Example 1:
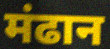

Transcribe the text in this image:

मंढान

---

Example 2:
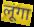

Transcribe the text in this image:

लूंगा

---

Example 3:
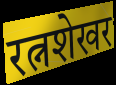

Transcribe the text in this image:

रत्नशेखर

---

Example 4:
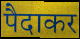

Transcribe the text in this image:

पैदाकर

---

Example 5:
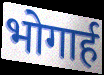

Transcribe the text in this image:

भोगार्ह